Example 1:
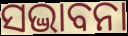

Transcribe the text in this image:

ସଦ୍ଭାବନା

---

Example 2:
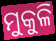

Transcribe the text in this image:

ମୁକୁଳି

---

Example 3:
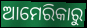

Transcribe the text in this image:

ଆମେରିକାରୁ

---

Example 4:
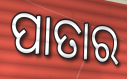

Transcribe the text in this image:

ପାତାର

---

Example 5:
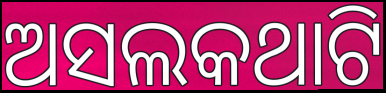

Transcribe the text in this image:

ଅସଲକଥାଟି